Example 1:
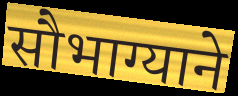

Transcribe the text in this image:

सौभाग्याने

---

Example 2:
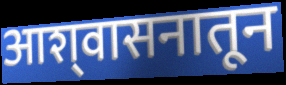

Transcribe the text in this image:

आश्वासनातून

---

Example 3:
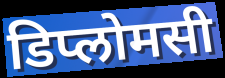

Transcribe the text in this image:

डिप्लोमसी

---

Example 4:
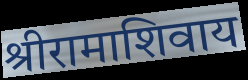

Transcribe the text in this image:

श्रीरामाशिवाय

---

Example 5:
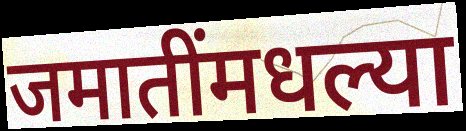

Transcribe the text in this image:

जमातींमधल्या